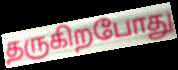
தருகிறபோது